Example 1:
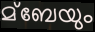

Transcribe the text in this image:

മ്ബേയും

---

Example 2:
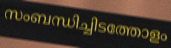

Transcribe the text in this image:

സംബന്ധിച്ചിടത്തോളം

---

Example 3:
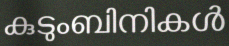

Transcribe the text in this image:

കുടുംബിനികൾ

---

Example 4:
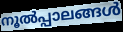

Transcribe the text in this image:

നൂൽപ്പാലങ്ങൾ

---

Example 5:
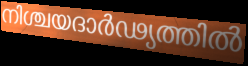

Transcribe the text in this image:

നിശ്ചയദാർഢ്യത്തിൽ